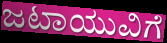
ಜಟಾಯುವಿಗೆ